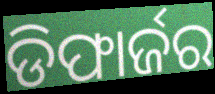
ଡିଫାର୍ଜର